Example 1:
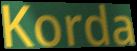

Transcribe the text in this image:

Korda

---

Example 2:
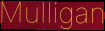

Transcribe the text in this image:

Mulligan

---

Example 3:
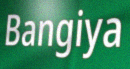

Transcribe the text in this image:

Bangiya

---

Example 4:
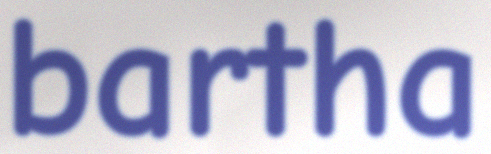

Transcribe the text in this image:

bartha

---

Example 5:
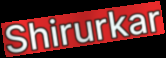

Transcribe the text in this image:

Shirurkar